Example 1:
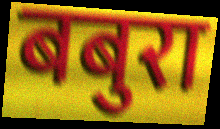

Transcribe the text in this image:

बबुरा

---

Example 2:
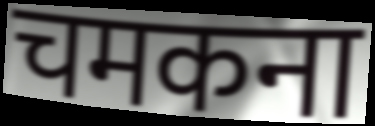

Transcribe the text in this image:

चमकना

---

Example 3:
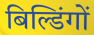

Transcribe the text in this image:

बिल्डिंगों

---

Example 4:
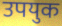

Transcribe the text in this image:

उपयुक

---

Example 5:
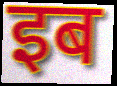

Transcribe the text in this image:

इब